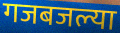
गजबजल्या